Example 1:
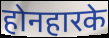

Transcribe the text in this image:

होनहारके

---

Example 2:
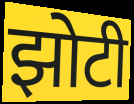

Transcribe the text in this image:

झोटी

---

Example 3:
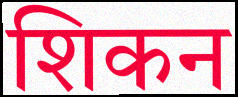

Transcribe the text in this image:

शिकन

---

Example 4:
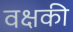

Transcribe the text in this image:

वक्षकी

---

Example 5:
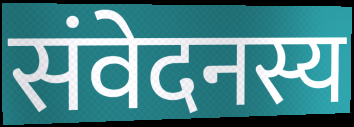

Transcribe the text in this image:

संवेदनस्य